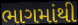
ભાગમાંથી